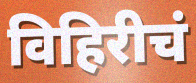
विहिरीचं